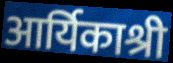
आर्यिकाश्री